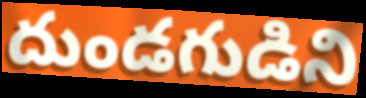
దుండగుడిని